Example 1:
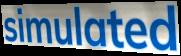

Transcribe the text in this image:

simulated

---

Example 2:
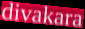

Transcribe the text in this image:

divakara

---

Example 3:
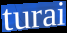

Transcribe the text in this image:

turai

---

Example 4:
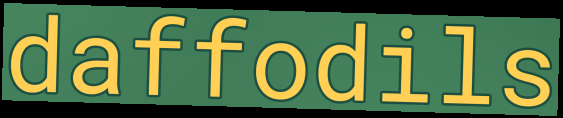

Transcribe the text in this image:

daffodils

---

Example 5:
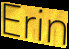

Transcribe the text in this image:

Erin